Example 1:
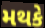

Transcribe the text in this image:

મથકે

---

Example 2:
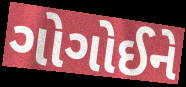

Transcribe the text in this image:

ગોગોઈને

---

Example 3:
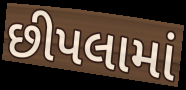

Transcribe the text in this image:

છીપલામાં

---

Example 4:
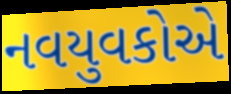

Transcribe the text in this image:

નવયુવકોએ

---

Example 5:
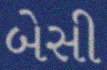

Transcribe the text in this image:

બેસી